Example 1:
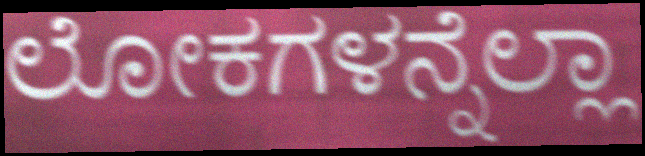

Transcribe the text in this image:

ಲೋಕಗಳನ್ನೆಲ್ಲಾ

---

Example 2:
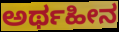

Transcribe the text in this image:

ಅರ್ಥಹೀನ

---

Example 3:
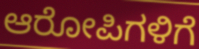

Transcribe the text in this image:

ಆರೋಪಿಗಳಿಗೆ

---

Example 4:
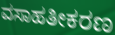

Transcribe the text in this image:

ವಸಾಹತೀಕರಣ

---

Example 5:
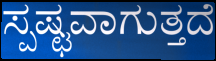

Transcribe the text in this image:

ಸ್ಪಷ್ಟವಾಗುತ್ತದೆ